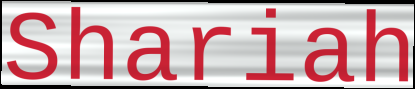
Shariah